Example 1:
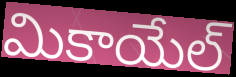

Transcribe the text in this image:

మికాయేల్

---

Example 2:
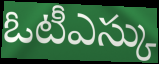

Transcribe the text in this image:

ఓటీఎస్కు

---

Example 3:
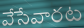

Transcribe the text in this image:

వేసేవారట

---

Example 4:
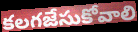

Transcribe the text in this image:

కలగజేసుకోవాలి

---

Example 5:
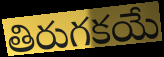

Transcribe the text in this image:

తిరుగకయే